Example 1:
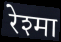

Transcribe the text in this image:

रेश्मा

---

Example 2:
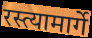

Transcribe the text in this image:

रस्त्यामार्गे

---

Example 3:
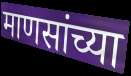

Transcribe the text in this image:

माणसांच्या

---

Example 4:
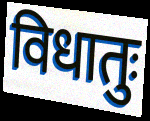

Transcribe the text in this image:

विधातुः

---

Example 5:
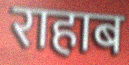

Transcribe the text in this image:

राहाब